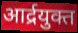
आर्द्रयुक्त